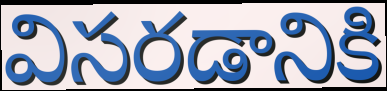
విసరడానికి